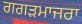
ਗਗੜਮਾਜਰਾ